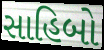
સાહિબો